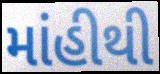
માંહીથી